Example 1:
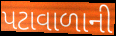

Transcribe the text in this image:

પટાવાળાની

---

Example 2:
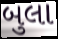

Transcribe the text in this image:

બુલા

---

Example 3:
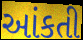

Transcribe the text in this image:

આંકતી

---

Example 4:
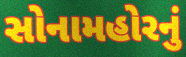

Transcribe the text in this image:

સોનામહોરનું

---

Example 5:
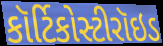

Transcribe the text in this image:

કૉર્ટિકોસ્ટીરૉઇડ